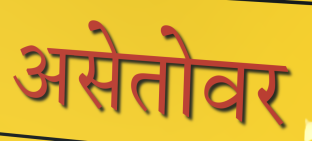
असेतोवर